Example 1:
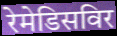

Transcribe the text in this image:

रेमेडिसविर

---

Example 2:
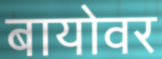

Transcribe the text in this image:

बायोवर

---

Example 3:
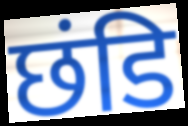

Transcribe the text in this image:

छंडि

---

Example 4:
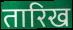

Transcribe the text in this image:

तारिख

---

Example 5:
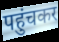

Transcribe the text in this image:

पहुंचकर